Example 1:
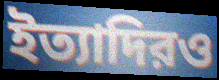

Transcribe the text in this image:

ইত্যাদিরও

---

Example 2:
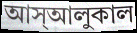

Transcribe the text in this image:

আস্আলুকাল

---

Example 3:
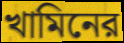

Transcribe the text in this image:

খামিনের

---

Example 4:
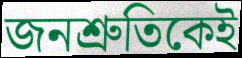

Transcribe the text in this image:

জনশ্রুতিকেই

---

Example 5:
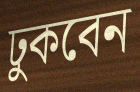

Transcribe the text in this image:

ঢুকবেন